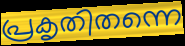
പ്രകൃതിതന്നെ